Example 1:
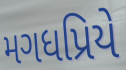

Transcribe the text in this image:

મગધપ્રિયે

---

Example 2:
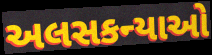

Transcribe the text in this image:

અલસકન્યાઓ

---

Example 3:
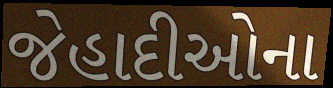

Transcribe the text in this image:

જેહાદીઓના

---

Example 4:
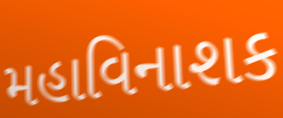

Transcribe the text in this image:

મહાવિનાશક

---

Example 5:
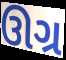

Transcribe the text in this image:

ઊગ્ર